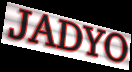
JADYO